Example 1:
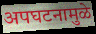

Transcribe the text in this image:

अपघटनामुळे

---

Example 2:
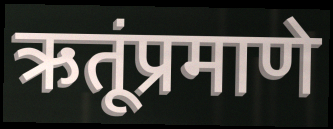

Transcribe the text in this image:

ऋतूंप्रमाणे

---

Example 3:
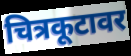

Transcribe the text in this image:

चित्रकूटावर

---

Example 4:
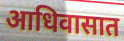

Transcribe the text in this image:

आधिवासात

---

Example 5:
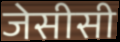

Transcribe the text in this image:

जेसीसी